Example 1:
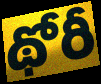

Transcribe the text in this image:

థోరీ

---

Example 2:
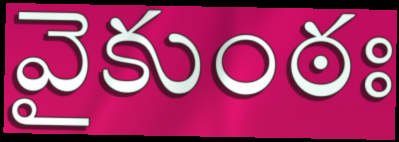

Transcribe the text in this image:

వైకుంఠః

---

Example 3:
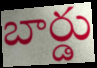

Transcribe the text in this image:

బార్డు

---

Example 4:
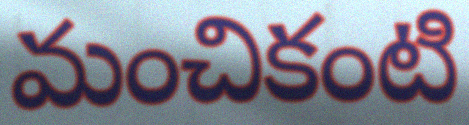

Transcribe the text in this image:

మంచికంటి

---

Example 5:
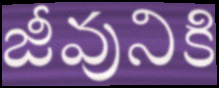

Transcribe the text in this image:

జీవునికి